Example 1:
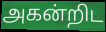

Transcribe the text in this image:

அகன்றிட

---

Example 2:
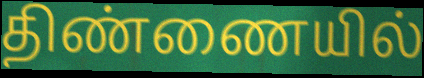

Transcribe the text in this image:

திண்ணையில்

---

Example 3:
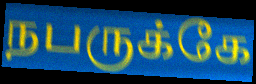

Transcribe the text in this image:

நபருக்கே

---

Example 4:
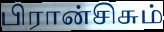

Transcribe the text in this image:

பிரான்சிசும்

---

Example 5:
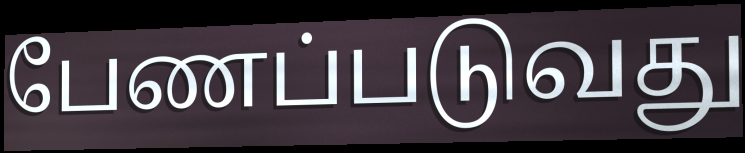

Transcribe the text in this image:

பேணப்படுவது